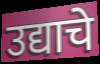
उद्याचे